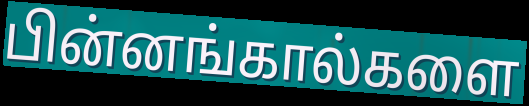
பின்னங்கால்களை